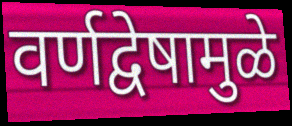
वर्णद्वेषामुळे